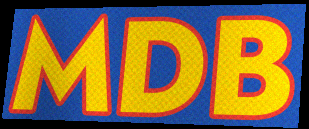
MDB